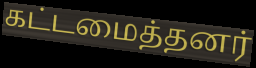
கட்டமைத்தனர்